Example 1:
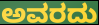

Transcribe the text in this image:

ಅವರದು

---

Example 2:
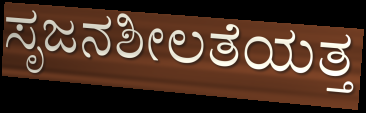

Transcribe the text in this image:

ಸೃಜನಶೀಲತೆಯತ್ತ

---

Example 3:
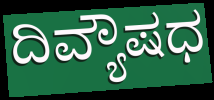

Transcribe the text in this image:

ದಿವ್ಯೌಷಧ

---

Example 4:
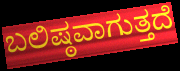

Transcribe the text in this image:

ಬಲಿಷ್ಠವಾಗುತ್ತದೆ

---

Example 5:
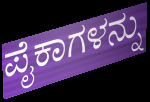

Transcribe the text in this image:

ಪೈಕಾಗಳನ್ನು